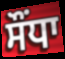
ਸੌਂਧਾ